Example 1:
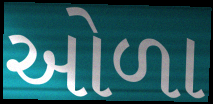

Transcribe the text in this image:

ઓળા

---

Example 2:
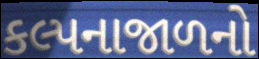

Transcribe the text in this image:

કલ્પનાજાળનો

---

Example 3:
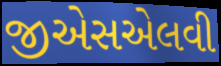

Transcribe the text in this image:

જીએસએલવી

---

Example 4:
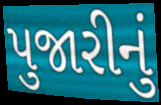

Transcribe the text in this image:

પુજારીનું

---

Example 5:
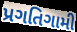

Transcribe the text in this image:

પ્રગતિગામી